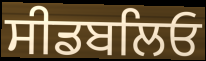
ਸੀਡਬਲਿਓ